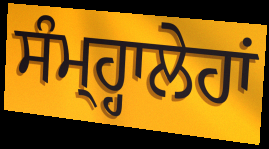
ਸੰਮ੍ਹ੍ਹਾਲੇਹਾਂ